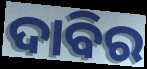
ଦାବିର